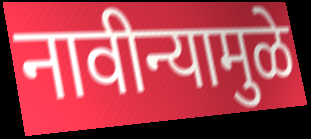
नावीन्यामुळे